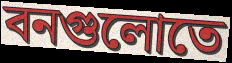
বনগুলোতে